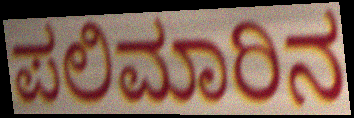
ಪಲಿಮಾರಿನ